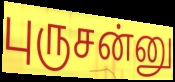
புருசன்னு